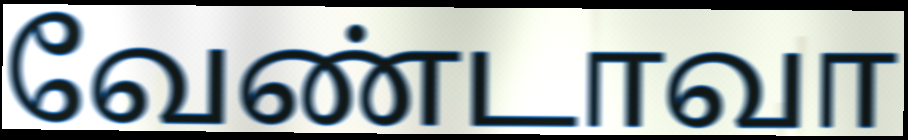
வேண்டாவா